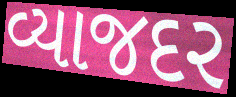
વ્યાજદર